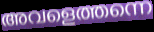
അവളെത്തന്നെ